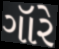
ગૉરે